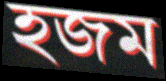
হজম